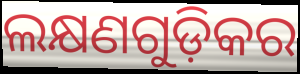
ଲକ୍ଷଣଗୁଡ଼ିକର